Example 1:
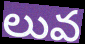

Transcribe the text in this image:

లువ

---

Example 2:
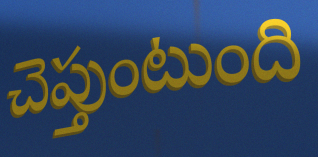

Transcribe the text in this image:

చెప్తుంటుంది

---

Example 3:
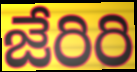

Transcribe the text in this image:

జేరిరి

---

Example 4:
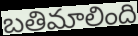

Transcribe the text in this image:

బతిమాలింది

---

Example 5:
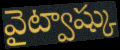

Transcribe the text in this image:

వైట్వాష్కు